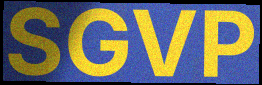
SGVP